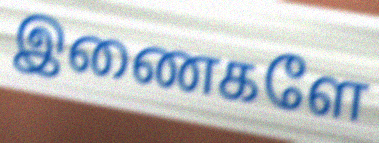
இணைகளே